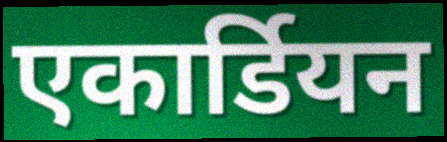
एकार्डियन